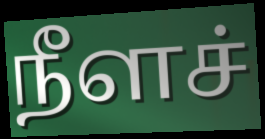
நீளச்